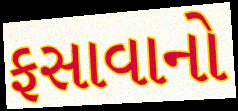
ફસાવાનો